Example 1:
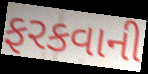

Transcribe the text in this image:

ફરકવાની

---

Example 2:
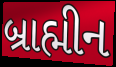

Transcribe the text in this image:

બ્રાહ્મીન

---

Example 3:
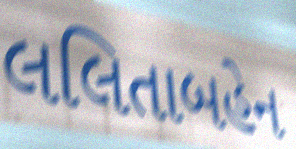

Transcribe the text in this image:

લલિતાબહેન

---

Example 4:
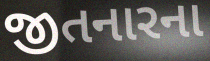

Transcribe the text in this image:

જીતનારના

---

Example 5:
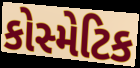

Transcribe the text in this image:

કોસ્મેટિક